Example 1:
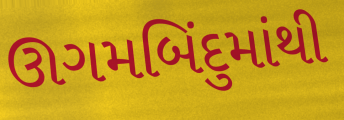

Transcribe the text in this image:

ઊગમબિંદુમાંથી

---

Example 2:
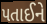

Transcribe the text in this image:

પતાઈને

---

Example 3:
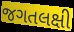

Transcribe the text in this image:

જગતલક્ષી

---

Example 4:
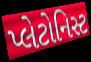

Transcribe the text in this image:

પ્લેટોનિસ્ટ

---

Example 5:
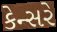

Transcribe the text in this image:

કેન્સરે